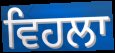
ਵਿਹਲਾ